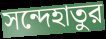
সন্দেহাতুর